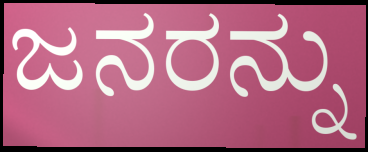
ಜನರನ್ನು